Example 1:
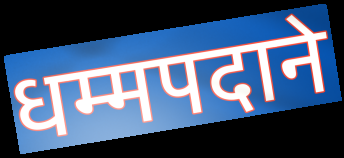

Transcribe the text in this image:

धम्मपदाने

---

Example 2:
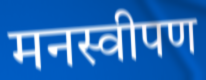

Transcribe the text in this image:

मनस्वीपण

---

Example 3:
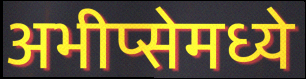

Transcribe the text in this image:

अभीप्सेमध्ये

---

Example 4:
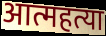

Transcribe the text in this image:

आत्महत्या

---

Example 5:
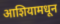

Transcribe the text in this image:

आशियामधून